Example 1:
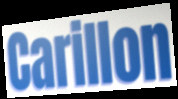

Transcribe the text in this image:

Carillon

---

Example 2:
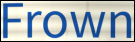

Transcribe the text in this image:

Frown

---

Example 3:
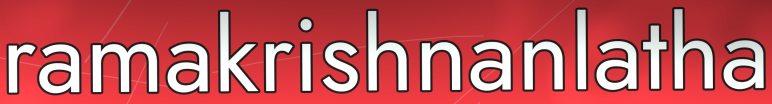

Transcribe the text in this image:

ramakrishnanlatha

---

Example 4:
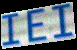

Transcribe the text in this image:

IEI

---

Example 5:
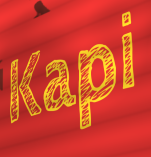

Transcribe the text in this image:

Kapi